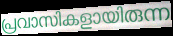
പ്രവാസികളായിരുന്ന